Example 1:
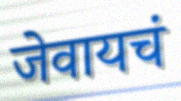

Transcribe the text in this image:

जेवायचं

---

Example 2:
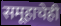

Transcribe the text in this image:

समूहाचेही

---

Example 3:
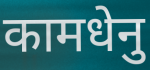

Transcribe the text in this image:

कामधेनु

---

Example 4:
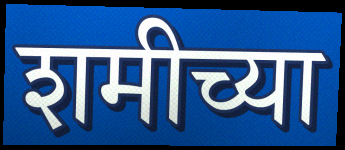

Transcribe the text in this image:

शमीच्या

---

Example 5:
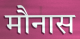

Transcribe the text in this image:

मौनास